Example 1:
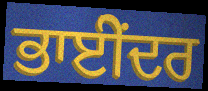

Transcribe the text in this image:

ਭਾਈੇਂਦਰ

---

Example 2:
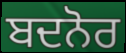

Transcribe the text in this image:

ਬਦਨੋਰ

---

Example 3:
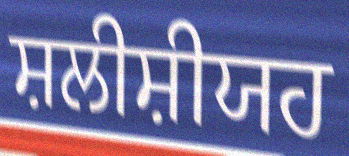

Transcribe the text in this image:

ਸ਼ਲੀਸ਼ੀਯਹ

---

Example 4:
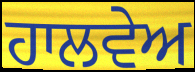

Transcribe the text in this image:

ਹਾਲਵੇਅ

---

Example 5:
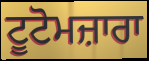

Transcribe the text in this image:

ਟੂਟੋਮਜ਼ਾਰਾ